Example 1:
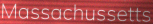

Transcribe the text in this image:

Massachussetts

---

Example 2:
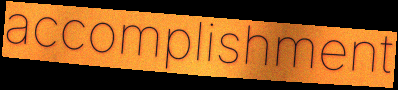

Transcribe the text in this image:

accomplishment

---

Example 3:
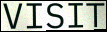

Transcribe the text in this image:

VISIT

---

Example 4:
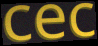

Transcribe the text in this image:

cec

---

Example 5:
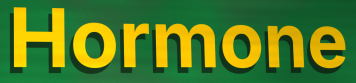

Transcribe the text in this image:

Hormone